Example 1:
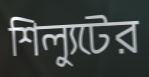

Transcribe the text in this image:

শিল্যুটের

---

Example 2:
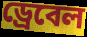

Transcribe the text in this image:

ড্রেবেল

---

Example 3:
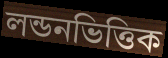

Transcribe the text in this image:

লন্ডনভিত্তিক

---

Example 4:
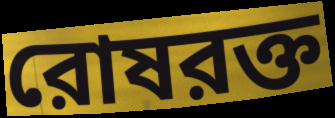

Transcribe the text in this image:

রোষরক্ত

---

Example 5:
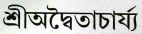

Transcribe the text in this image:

শ্রীঅদ্বৈতাচার্য্য